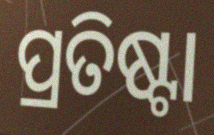
ପ୍ରତିଷ୍ଟା